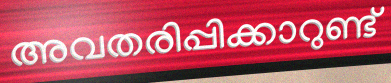
അവതരിപ്പിക്കാറുണ്ട്